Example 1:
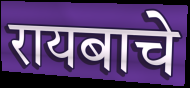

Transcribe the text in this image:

रायबाचे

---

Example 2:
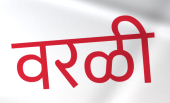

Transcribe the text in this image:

वरळी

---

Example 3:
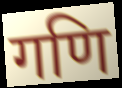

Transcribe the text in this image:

गणि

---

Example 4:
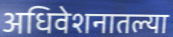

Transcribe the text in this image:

अधिवेशनातल्या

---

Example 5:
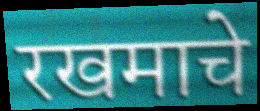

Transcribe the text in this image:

रखमाचे